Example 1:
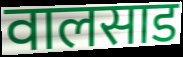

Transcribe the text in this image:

वालसाड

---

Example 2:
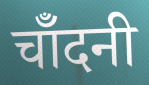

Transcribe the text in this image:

चॉँदनी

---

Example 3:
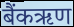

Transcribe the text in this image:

बैंकऋण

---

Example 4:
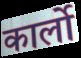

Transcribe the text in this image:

कार्लो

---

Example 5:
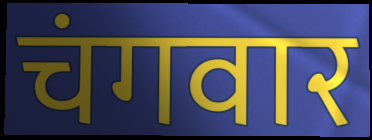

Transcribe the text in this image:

चंगवार